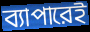
ব্যাপারেই